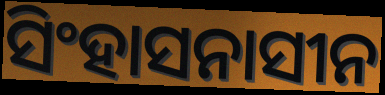
ସିଂହାସନାସୀନ